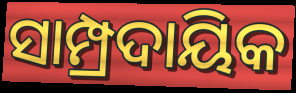
ସାମ୍ପ୍ରଦାୟିକ